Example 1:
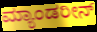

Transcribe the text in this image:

ಮ್ಯಾಂಡರೀನ್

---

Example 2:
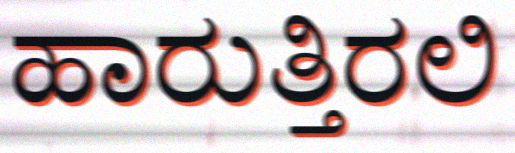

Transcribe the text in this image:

ಹಾರುತ್ತಿರಲಿ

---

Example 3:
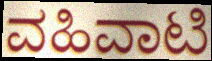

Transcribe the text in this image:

ವಹಿವಾಟಿ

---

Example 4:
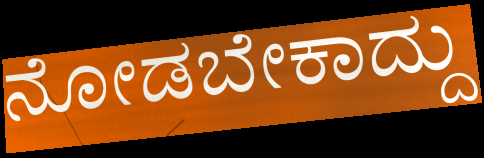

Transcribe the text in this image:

ನೋಡಬೇಕಾದ್ದು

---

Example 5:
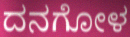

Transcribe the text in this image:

ದನಗೋಳ